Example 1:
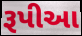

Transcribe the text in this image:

રૂપીઆ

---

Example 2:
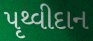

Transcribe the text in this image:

પૃથ્વીદાન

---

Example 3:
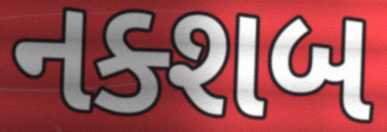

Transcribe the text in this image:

નક્શબ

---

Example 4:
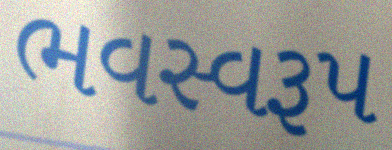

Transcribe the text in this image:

ભવસ્વરૂપ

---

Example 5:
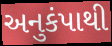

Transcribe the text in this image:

અનુકંપાથી